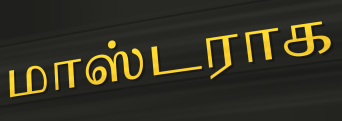
மாஸ்டராக